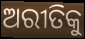
ଅରୀତିକୁ